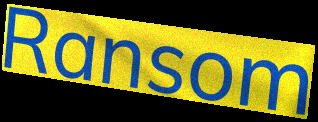
Ransom